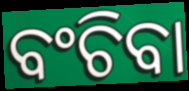
ବଂଚିବା